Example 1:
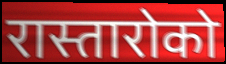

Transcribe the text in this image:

रास्तारोको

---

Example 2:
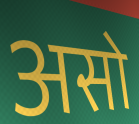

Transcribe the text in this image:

असो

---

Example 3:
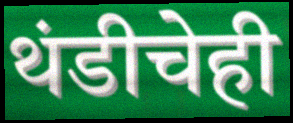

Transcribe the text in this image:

थंडीचेही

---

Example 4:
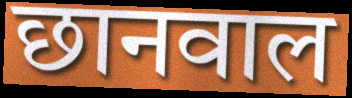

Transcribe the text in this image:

छानवाल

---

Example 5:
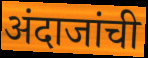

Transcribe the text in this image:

अंदाजांची